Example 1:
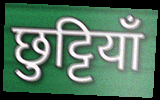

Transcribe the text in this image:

छुट्टियाँ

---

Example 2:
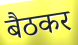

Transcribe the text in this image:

बैठकर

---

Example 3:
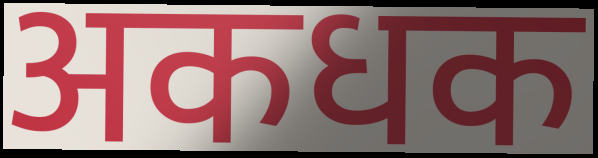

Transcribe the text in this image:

अकधक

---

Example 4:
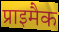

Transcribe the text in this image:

प्राइमैक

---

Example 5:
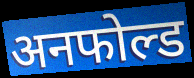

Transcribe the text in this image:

अनफोल्ड